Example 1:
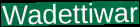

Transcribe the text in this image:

Wadettiwar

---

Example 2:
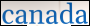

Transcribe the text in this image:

canada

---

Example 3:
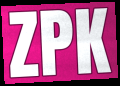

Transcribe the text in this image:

ZPK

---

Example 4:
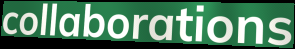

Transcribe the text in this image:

collaborations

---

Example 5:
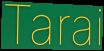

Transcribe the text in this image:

Tarai